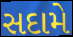
સદામે